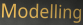
Modelling